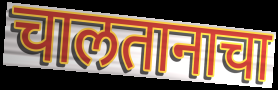
चालतानाचा